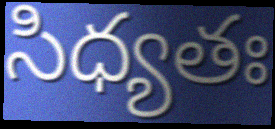
సిధ్యతః